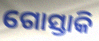
ଗୋସ୍ତାକି